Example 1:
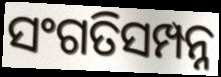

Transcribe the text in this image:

ସଂଗତିସମ୍ପନ୍ନ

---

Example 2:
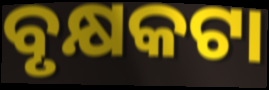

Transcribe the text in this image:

ବୃକ୍ଷକଟା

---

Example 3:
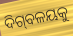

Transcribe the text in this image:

ଦିଗ୍‌ବଳୟକୁ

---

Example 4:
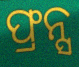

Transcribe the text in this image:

ଫ୍ରନ୍ସ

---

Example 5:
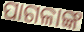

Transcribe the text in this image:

ପାଗଳାଙ୍କ